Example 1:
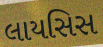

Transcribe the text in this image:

લાયસિસ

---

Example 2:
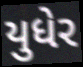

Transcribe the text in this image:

યુધેર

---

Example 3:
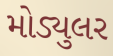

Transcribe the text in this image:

મોડ્યુલર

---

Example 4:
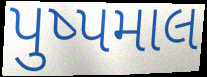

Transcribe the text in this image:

પુષ્પમાલ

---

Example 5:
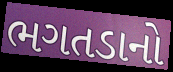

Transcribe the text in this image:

ભગતડાનો